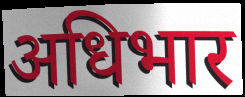
अधिभार